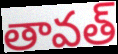
తావత్